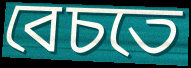
বেচতে